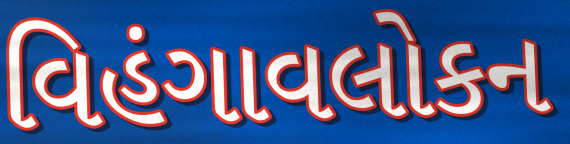
વિહંગાવલોકન